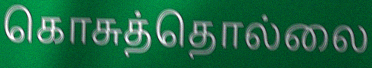
கொசுத்தொல்லை